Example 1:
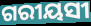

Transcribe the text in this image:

ଗରୀୟସୀ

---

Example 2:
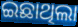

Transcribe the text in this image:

ଇଛାଥିଲା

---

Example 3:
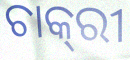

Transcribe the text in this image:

ଚାକ୍‌ରୀ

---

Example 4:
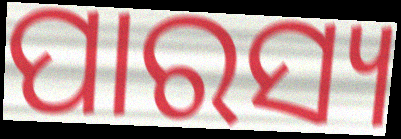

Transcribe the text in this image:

ପାରସ୍ଯ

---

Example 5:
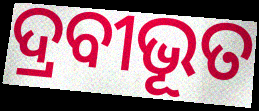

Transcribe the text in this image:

ଦ୍ରବୀଭୂତ